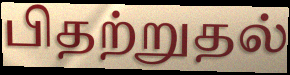
பிதற்றுதல்